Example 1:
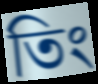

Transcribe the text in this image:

তিং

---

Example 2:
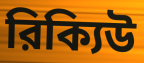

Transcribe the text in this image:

রিক্যিউ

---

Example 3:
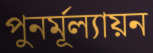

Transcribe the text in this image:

পুনর্মূল্যায়ন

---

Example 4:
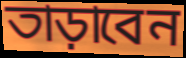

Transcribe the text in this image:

তাড়াবেন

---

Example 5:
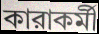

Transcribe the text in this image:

কারাকর্মী